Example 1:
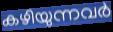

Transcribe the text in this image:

കഴിയുന്നവർ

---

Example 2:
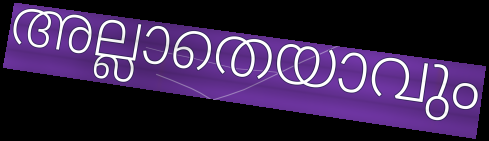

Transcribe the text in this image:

അല്ലാതെയാവും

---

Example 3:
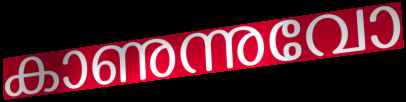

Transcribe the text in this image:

കാണുന്നുവോ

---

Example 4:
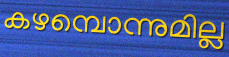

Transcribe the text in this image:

കഴമ്പൊന്നുമില്ല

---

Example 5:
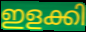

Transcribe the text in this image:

ഇളക്കി